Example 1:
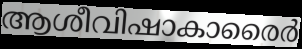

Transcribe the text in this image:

ആശീവിഷാകാരൈർ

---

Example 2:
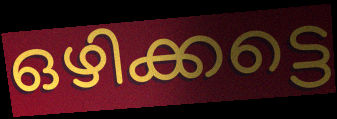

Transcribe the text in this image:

ഒഴിക്കട്ടെ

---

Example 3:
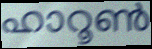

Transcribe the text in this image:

ഹാറൂൺ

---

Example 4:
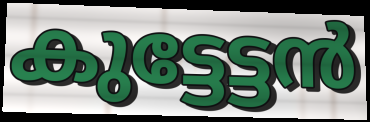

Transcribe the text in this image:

കുട്ടേട്ടൻ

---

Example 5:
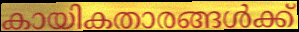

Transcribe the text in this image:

കായികതാരങ്ങൾക്ക്